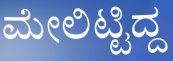
ಮೇಲಿಟ್ಟಿದ್ದ